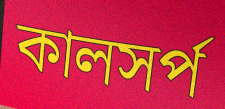
কালসর্প